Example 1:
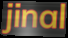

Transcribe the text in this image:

jinal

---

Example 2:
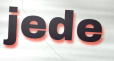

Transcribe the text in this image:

jede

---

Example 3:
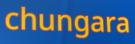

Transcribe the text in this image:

chungara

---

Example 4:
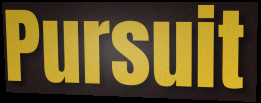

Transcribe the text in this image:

Pursuit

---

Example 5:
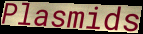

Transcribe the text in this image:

Plasmids